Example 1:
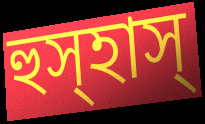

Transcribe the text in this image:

হুস্হাস্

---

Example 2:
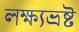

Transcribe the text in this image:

লক্ষ্যভ্রষ্ট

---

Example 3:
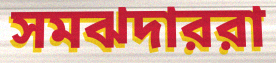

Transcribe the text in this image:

সমঝদাররা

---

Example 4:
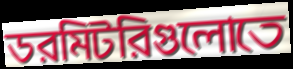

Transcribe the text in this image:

ডরমিটরিগুলোতে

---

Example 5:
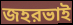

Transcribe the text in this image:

জহরভাই